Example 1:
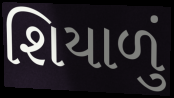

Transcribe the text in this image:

શિયાળું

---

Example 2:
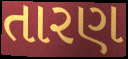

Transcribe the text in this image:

તારણ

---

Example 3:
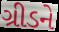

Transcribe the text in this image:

ગ્રીડને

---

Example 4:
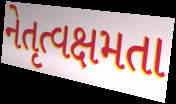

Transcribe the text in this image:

નેતૃત્વક્ષમતા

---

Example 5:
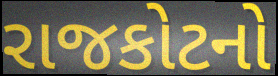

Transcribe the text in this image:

રાજકોટનો